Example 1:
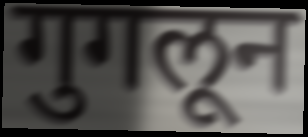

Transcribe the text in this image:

गुगलून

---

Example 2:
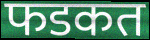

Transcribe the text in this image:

फडकत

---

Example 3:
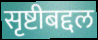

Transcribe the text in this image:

सृष्टीबद्दल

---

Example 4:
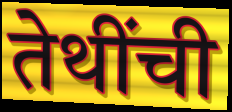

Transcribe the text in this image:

तेथींची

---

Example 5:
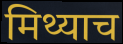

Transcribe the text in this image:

मिथ्याच